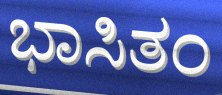
ಭಾಸಿತಂ